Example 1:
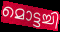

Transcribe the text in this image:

മൊട്ടച്ചി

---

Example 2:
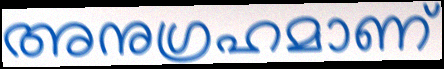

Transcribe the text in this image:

അനുഗ്രഹമാണ്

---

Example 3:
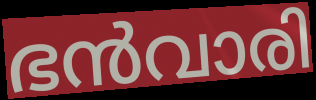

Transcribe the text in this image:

ഭൻവാരി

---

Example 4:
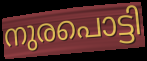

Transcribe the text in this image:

നുരപൊട്ടി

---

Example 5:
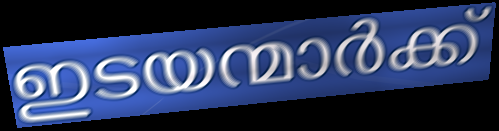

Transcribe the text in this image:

ഇടയന്മാർക്ക്